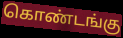
கொண்டங்கு